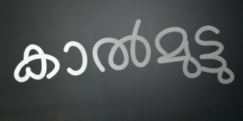
കാൽമുട്ടു